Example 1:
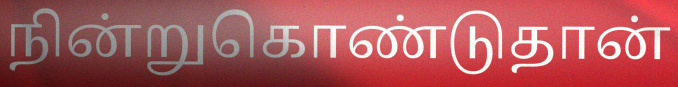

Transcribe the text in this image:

நின்றுகொண்டுதான்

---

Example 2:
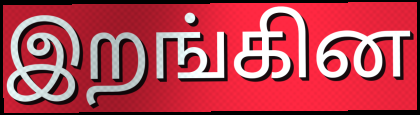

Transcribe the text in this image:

இறங்கின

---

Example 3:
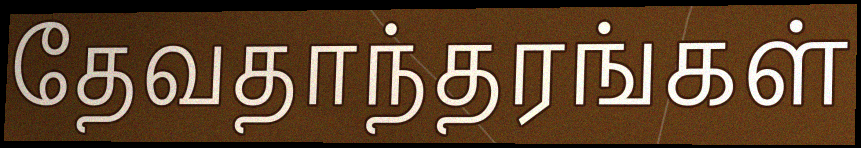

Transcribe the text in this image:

தேவதாந்தரங்கள்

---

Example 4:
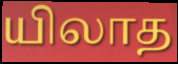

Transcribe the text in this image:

யிலாத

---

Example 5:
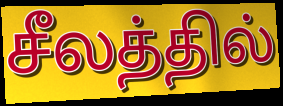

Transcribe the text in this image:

சீலத்தில்